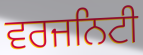
ਵਰਜਨਿਟੀ